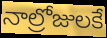
నాల్రోజులకే